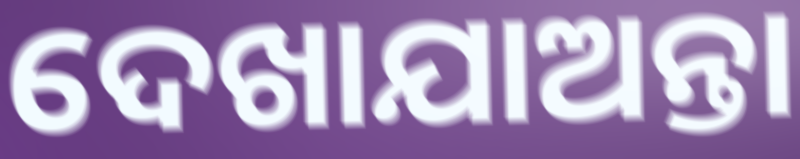
ଦେଖାଯାଅନ୍ତା